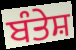
ਬੰਤੇਸ਼